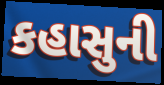
કહાસુની